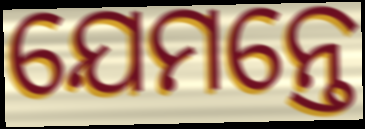
ଯେମନ୍ତେ